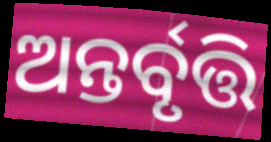
ଅନ୍ତର୍ବୃତ୍ତି